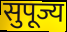
सुपूज्य